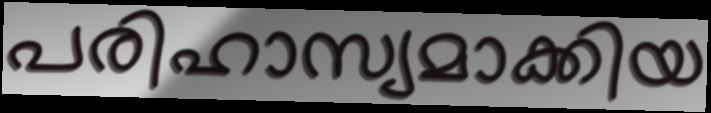
പരിഹാസ്യമാക്കിയ